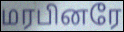
மரபினரே